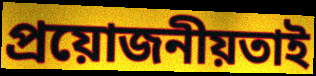
প্ৰয়োজনীয়তাই